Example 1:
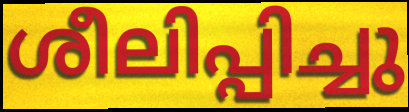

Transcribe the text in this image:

ശീലിപ്പിച്ചു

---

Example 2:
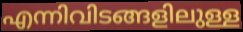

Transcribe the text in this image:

എന്നിവിടങ്ങളിലുള്ള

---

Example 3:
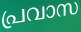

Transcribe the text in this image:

പ്രവാസ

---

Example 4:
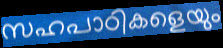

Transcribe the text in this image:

സഹപാഠികളെയും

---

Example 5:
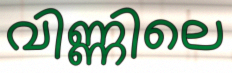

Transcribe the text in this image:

വിണ്ണിലെ